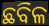
ଛବିଳ